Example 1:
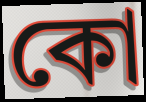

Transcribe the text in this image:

কো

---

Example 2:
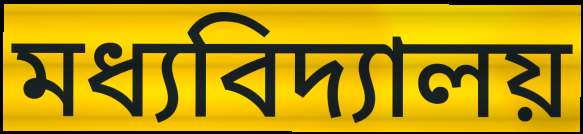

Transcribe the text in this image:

মধ্যবিদ্যালয়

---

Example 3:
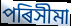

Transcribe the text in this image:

পৰিসীমা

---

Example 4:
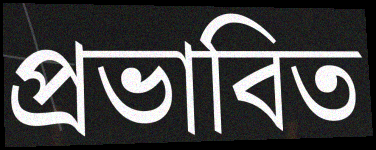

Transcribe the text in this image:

প্ৰভাবিত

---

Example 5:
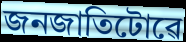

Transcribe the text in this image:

জনজাতিটোৱে